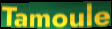
Tamoule